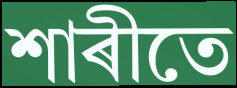
শাৰীতে